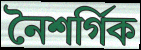
নৈশৰ্গিক